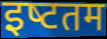
इष्‍टतम